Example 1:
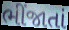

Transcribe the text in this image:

ભીંજાતાં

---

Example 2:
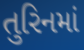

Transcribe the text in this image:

તુરિનમાં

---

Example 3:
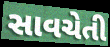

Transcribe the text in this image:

સાવચેતી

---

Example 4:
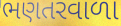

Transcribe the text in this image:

ભણતરવાળા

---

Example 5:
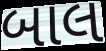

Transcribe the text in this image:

બાલ